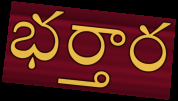
భర్తార